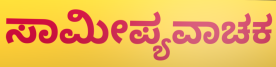
ಸಾಮೀಪ್ಯವಾಚಕ